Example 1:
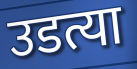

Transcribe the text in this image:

उडत्या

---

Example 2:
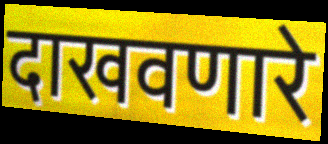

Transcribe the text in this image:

दाखवणारे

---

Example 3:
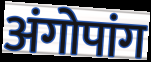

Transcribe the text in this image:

अंगोपांग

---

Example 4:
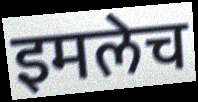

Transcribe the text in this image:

इमलेच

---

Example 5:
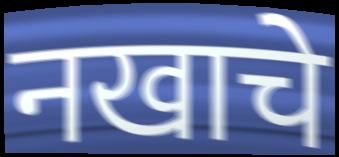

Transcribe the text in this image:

नखाचे